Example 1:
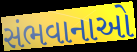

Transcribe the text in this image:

સંભવાનાઓ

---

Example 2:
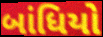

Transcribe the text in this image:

બાંધિયો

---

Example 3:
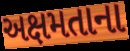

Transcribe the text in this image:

અક્ષમતાના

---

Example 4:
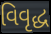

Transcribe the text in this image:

વિવૃદ્ધ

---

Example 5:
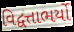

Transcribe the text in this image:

વિદ્વત્તાભર્યો